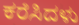
ಕರೆಸಿದಳು